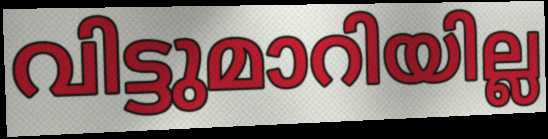
വിട്ടുമാറിയില്ല